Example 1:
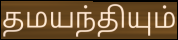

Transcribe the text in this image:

தமயந்தியும்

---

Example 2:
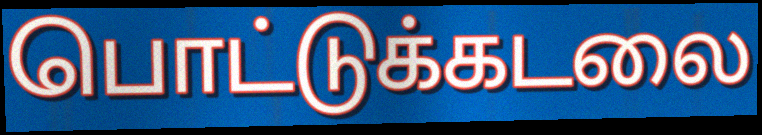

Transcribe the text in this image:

பொட்டுக்கடலை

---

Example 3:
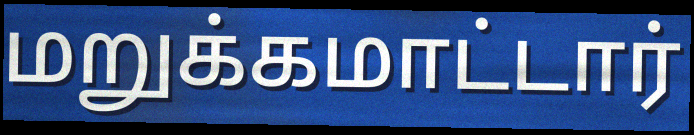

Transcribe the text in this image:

மறுக்கமாட்டார்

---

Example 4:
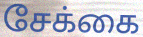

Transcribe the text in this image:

சேக்கை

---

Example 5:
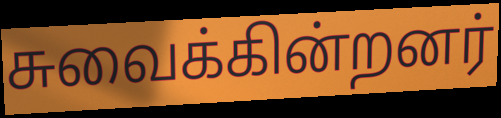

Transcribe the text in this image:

சுவைக்கின்றனர்